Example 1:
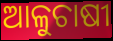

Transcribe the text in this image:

ଆଳୁଚାଷୀ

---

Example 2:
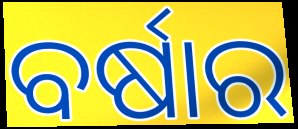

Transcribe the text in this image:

ବର୍ଷାର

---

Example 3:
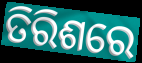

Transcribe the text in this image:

ତିରିଶରେ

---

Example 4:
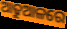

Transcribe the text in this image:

ଆଢୁଆଳରେ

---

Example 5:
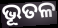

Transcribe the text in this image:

ଭୂତଳ